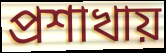
প্রশাখায়